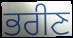
ਭਰੀਣ